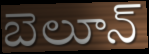
బెలూన్